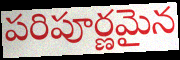
పరిపూర్ణమైన